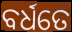
ବର୍ଧତେ